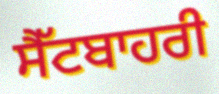
ਸੈੱਟਬਾਹਰੀ